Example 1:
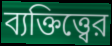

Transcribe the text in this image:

ব্যক্তিত্ত্বের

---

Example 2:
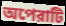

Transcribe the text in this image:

অপেরাটি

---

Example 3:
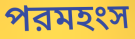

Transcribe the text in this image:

পরমহংস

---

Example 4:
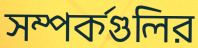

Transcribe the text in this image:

সম্পর্কগুলির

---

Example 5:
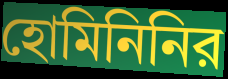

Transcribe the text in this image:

হোমিনিনির